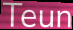
Teun